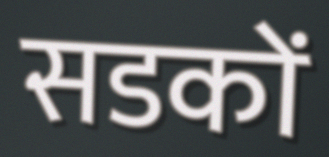
सडकों